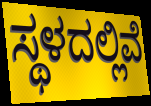
ಸ್ಥಳದಲ್ಲಿವೆ